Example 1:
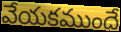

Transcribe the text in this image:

వేయకముందే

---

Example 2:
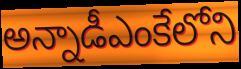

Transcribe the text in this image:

అన్నాడీఎంకేలోని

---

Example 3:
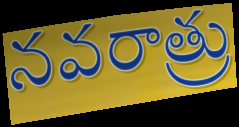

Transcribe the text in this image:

నవరాత్రు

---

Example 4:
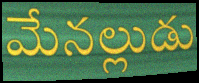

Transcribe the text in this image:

మేనల్లుడు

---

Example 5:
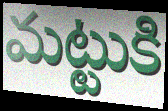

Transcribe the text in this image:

మట్టుకి